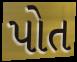
પોત